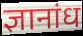
ज्ञानांध